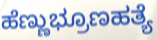
ಹೆಣ್ಣುಭ್ರೂಣಹತ್ಯೆ